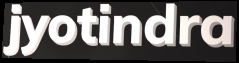
jyotindra